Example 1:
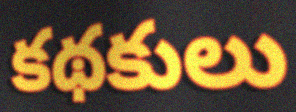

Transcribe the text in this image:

కథకులు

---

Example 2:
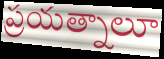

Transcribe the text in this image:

ప్రయత్నాలూ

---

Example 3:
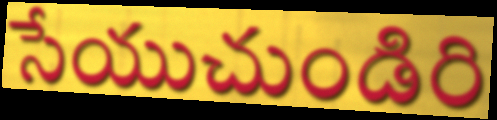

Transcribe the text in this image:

సేయుచుండిరి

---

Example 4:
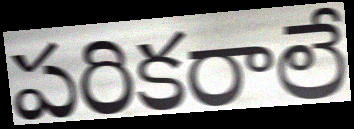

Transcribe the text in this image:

పరికరాలే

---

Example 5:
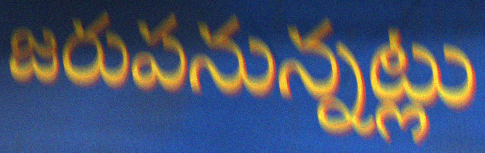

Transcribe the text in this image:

జరుపనున్నట్లు